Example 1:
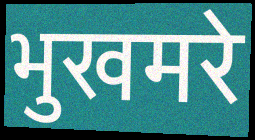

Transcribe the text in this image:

भुखमरे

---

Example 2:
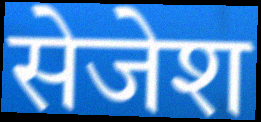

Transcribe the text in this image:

सेजेश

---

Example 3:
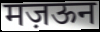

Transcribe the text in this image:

मज़ऊन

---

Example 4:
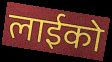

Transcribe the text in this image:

लाईको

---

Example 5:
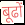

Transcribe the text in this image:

बूढों